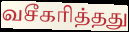
வசீகரித்தது